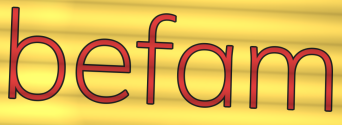
befam